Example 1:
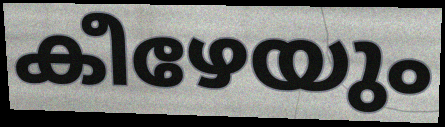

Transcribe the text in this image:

കീഴേയും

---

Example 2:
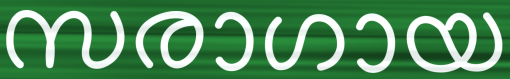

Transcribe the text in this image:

സരാഗായ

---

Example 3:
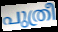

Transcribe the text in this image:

പുത്രീ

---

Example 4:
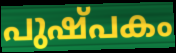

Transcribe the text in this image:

പുഷ്പകം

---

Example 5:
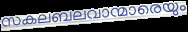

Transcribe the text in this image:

സകലബലവാന്മാരെയും